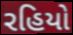
રહિયો